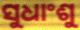
ସୁଧାଂଶୁ